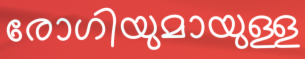
രോഗിയുമായുള്ള